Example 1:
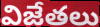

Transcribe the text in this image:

విజేతలు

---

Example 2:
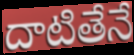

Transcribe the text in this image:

దాటితేనే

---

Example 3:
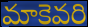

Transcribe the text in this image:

మాకెవరి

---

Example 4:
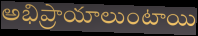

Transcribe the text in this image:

అభిప్రాయాలుంటాయి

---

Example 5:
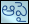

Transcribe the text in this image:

ఆపై